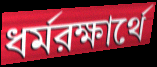
ধর্মরক্ষার্থে